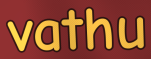
vathu